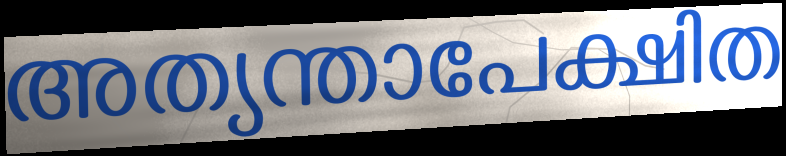
അത്യന്താപേക്ഷിത